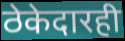
ठेकेदारही